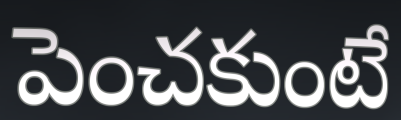
పెంచకుంటే